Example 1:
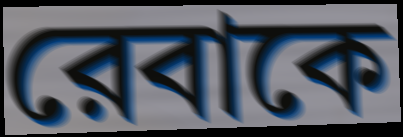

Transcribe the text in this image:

রেবাকে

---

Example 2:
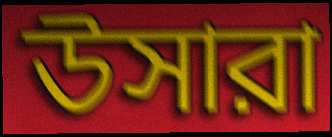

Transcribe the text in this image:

উসারা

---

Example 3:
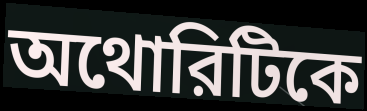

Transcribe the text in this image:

অথোরিটিকে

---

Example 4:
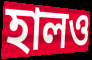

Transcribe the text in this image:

হালও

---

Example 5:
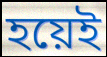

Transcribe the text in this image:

হয়েই